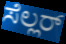
ಸೆಲ್ಲರ್